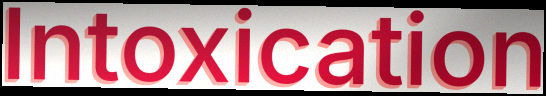
Intoxication